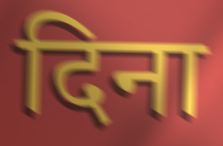
दिना